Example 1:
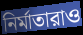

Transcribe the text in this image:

নির্মাতারাও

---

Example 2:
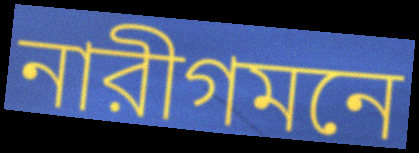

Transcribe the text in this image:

নারীগমনে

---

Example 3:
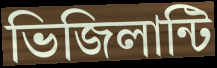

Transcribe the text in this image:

ভিজিলান্টি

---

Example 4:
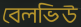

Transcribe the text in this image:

বেলভিউ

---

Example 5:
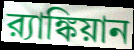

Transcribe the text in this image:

র‍্যাঙ্কিয়ান